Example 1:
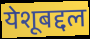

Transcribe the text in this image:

येशूबद्दल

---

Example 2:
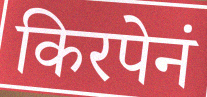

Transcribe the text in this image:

किरपेनं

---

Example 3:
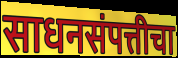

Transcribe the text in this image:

साधनसंपत्तीचा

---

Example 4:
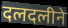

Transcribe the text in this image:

दलदलीने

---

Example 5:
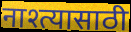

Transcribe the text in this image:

नाश्त्यासाठी